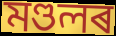
মণ্ডলৰ